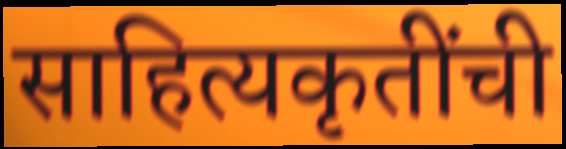
साहित्यकृतींची